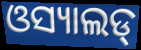
ଓସ୍ୟାଲଡ୍